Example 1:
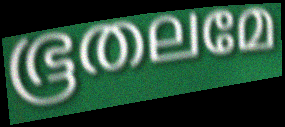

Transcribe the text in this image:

ഭൂതലമേ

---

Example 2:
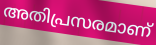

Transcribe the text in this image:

അതിപ്രസരമാണ്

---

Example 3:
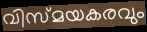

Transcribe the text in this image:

വിസ്മയകരവും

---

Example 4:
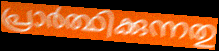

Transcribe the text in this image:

പ്രാർത്ഥിക്കുന്നതു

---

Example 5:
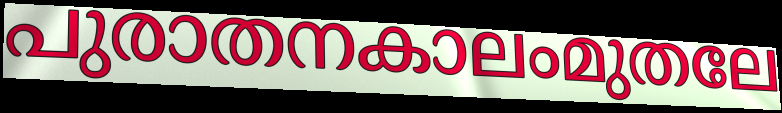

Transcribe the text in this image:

പുരാതനകാലംമുതലേ